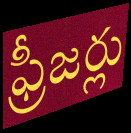
ఫ్రీజర్లు